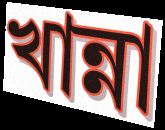
খান্না